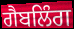
ਗੈਬਲਿੰਗ